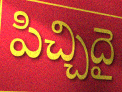
పిచ్చిదై